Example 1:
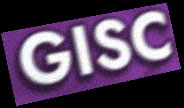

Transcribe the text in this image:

GISC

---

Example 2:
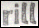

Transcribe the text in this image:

rill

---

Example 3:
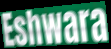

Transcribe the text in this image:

Eshwara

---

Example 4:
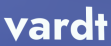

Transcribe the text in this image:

vardt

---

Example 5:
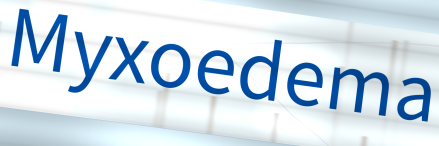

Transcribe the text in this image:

Myxoedema